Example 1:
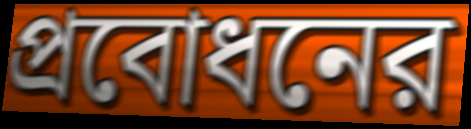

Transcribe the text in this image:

প্রবোধনের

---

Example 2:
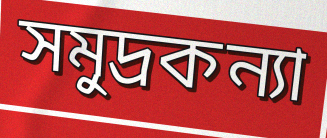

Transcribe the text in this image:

সমুদ্রকন্যা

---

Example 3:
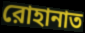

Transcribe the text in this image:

রোহানাত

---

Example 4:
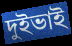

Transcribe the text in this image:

দুইভাই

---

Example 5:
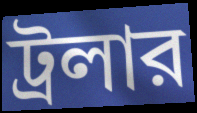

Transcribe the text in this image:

ট্রলার